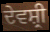
ਦੇਵਸ਼੍ਰੀ